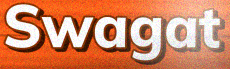
Swagat